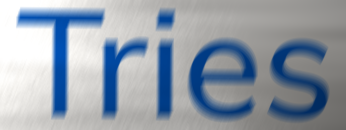
Tries